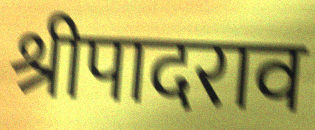
श्रीपादराव